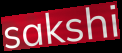
sakshi